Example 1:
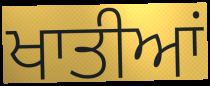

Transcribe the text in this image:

ਖਾਤੀਆਂ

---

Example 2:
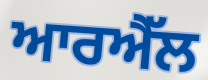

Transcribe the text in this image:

ਆਰਐੱਲ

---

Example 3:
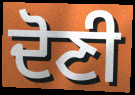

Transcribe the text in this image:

ਦੋਣੀ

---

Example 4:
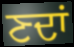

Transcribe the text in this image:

ਣਦਾਂ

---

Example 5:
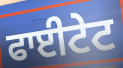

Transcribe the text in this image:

ਫਾਈਟੇਟ